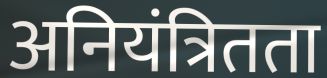
अनियंत्रितता